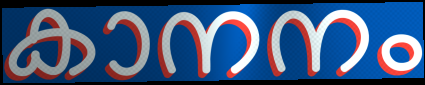
കാനനം